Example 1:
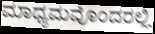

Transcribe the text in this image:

ಮಾಧ್ಯಮವೊಂದರಲ್ಲಿ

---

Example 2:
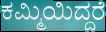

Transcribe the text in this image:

ಕಮ್ಮಿಯಿದ್ದರೆ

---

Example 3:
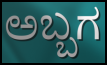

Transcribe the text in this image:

ಅಬ್ಬಗ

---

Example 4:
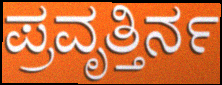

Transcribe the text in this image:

ಪ್ರವೃತ್ತಿರ್ನ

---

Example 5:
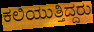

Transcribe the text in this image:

ಕಲಿಯುತ್ತಿದ್ದರು